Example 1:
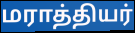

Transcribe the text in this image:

மராத்தியர்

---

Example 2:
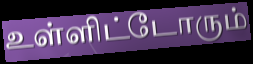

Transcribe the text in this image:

உள்ளிட்டோரும்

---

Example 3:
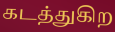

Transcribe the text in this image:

கடத்துகிற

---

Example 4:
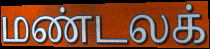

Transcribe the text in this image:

மண்டலக்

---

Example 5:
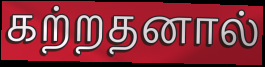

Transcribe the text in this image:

கற்றதனால்